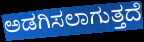
ಅಡಗಿಸಲಾಗುತ್ತದೆ